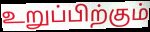
உறுப்பிற்கும்